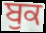
ਬੁਕ